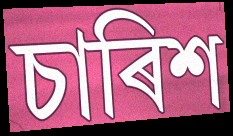
চাৰিশ